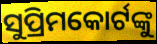
ସୁପ୍ରିମକୋର୍ଟଙ୍କୁ